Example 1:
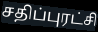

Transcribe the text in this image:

சதிப்புரட்சி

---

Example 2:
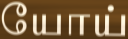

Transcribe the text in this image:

யோய்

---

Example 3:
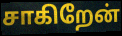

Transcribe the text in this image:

சாகிறேன்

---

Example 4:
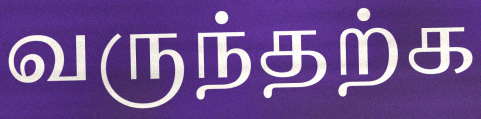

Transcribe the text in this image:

வருந்தற்க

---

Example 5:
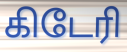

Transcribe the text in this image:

கிடேரி